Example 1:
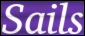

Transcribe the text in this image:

Sails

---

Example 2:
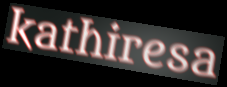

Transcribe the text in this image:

kathiresa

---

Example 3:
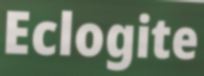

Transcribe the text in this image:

Eclogite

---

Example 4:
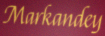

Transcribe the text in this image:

Markandey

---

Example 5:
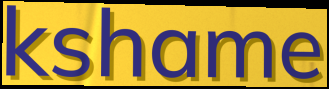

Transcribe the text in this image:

kshame